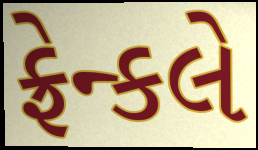
ફ્રેન્કલે